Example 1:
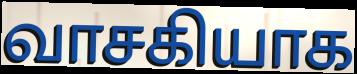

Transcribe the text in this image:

வாசகியாக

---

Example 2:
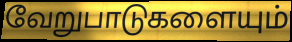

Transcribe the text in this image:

வேறுபாடுகளையும்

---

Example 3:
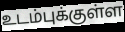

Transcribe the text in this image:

உடம்புக்குள்ள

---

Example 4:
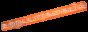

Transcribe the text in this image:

உற்றுப்பார்க்கையில்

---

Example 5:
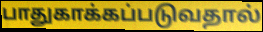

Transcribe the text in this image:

பாதுகாக்கப்படுவதால்